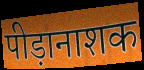
पीड़ानाशक